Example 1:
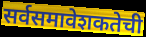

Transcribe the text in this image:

सर्वसमावेशकतेची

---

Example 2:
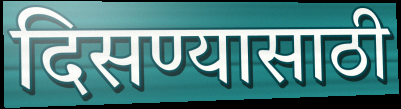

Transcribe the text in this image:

दिसण्यासाठी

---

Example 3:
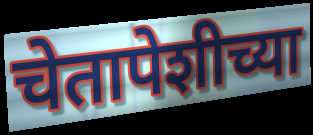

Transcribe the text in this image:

चेतापेशीच्या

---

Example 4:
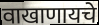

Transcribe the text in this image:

वाखाणायचे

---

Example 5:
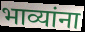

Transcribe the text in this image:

भाव्यांना